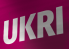
UKRI